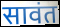
सावंत